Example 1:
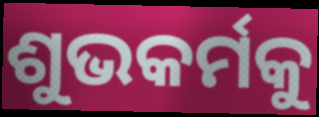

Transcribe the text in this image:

ଶୁଭକର୍ମକୁ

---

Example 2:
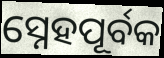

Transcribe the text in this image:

ସ୍ନେହପୂର୍ବକ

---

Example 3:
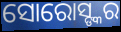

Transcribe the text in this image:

ସୋରୋସ୍ଙ୍କର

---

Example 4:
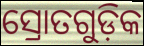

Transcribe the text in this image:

ସ୍ରୋତଗୁଡ଼ିକ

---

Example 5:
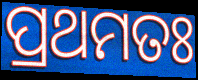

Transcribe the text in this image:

ପ୍ରଥମତଃ